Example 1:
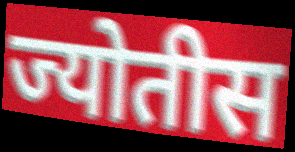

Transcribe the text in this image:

ज्योतीस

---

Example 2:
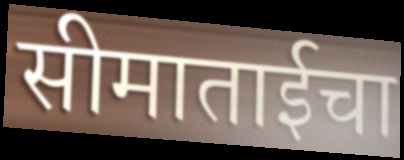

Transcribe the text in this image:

सीमाताईचा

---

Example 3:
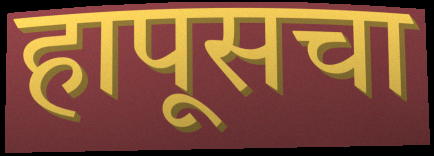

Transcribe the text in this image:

हापूसचा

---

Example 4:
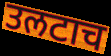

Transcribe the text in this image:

उलटाच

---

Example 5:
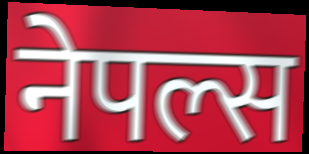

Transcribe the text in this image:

नेपल्स